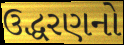
ઉદ્ધરણનો